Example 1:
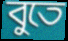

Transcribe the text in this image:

বুতে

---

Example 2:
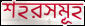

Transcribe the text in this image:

শহরসমূহ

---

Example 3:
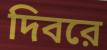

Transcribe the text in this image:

দিবরে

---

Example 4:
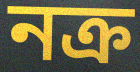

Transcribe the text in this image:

নক্র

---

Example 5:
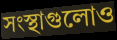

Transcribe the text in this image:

সংস্থাগুলোও